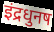
इंद्रधुनष